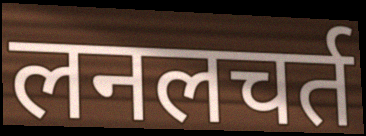
लनलचर्त